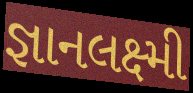
જ્ઞાનલક્ષ્મી